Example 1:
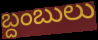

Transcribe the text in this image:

బ్దంబులు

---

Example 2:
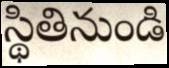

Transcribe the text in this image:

స్థితినుండి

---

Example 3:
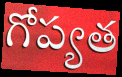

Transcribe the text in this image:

గోప్యత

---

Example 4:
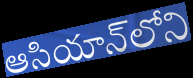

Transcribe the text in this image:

ఆసియాన్‌లోని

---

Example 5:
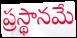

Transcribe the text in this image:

ప్రస్థానమే